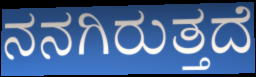
ನನಗಿರುತ್ತದೆ